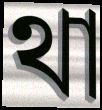
থা